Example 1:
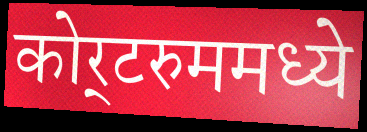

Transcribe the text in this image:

कोर्टरुममध्ये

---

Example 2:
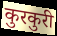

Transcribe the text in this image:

कुरकुरी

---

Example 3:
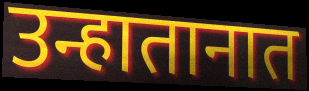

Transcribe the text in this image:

उन्हातानात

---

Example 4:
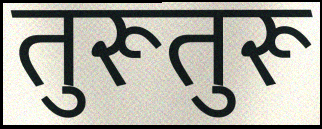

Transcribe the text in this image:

तुरूतुरू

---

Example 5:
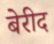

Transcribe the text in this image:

बेरीद